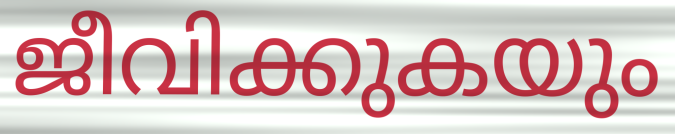
ജീവിക്കുകയും